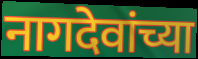
नागदेवांच्या